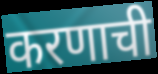
करणाची